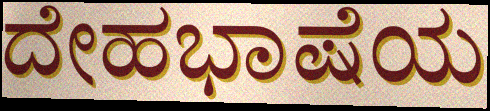
ದೇಹಭಾಷೆಯ